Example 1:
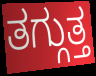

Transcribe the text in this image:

ತಗ್ಗುತ್ತ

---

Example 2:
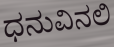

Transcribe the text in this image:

ಧನುವಿನಲಿ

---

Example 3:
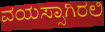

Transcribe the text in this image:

ವಯಸ್ಸಾಗಿರಲಿ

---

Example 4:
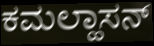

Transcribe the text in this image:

ಕಮಲ್ಹಾಸನ್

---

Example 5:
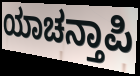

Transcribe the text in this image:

ಯಾಚನ್ತಾಪಿ